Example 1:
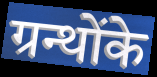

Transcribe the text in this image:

ग्रन्थोंके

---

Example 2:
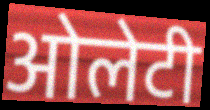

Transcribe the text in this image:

ओलेटी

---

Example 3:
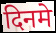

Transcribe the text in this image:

दिनमे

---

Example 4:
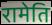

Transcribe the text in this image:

रामेति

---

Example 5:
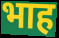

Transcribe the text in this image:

भाह